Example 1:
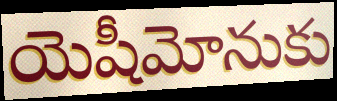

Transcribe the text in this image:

యెషీమోనుకు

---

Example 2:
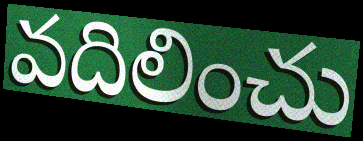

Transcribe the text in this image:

వదిలించు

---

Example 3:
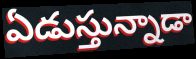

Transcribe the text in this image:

ఏడుస్తున్నాడా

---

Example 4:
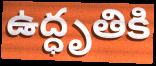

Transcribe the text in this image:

ఉద్ధృతికి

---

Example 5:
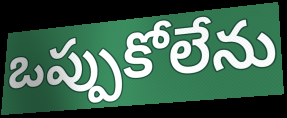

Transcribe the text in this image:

ఒప్పుకోలేను